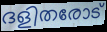
ദളിതരോട്